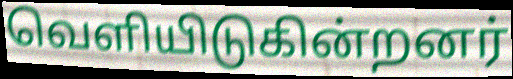
வெளியிடுகின்றனர்